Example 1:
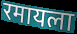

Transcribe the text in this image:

रमायला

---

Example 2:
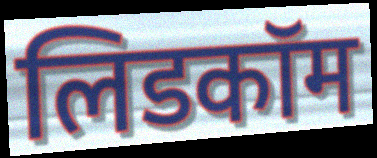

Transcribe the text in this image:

लिडकॉम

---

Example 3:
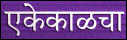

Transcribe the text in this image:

एकेकाळचा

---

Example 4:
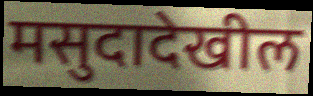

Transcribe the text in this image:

मसुदादेखील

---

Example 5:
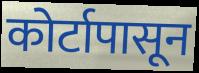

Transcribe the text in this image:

कोर्टापासून